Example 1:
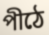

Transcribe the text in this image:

পীঠে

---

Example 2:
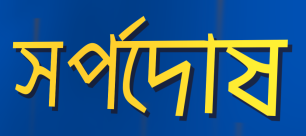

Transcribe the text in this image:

সর্পদোষ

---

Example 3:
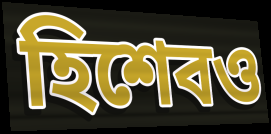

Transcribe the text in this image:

হিশেবও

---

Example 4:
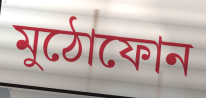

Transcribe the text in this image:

মুঠোফোন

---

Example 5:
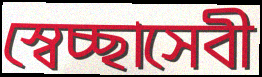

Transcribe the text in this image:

স্বেচ্ছাসেবী